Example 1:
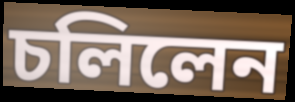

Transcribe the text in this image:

চলিলেন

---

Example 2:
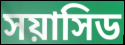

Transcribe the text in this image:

সয়াসিড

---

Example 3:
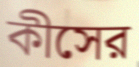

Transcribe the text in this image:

কীসের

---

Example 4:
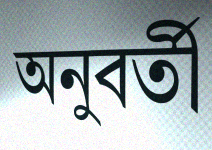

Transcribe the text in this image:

অনুবর্তী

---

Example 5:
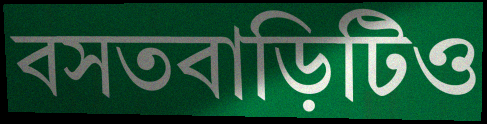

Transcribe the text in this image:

বসতবাড়িটিও